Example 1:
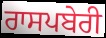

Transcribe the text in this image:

ਰਾਸਪਬੇਰੀ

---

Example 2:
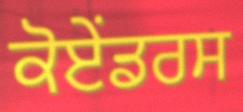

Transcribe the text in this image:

ਕੋਏਂਡਰਸ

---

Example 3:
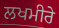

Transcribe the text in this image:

ਲਖਮੀਰੇ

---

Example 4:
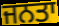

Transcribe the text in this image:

ਜਨਤਾ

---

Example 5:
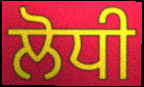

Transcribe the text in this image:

ਲੋਧੀ